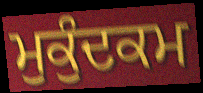
ਮੁਕੁੰਦਕਮ